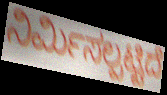
ನಿರ್ಮಿಸಲ್ಪಟ್ಟಿದೆ